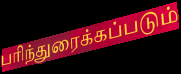
பரிந்துரைக்கப்படும்